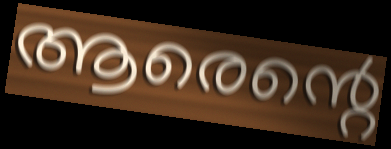
ആരെന്റെ